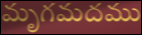
మృగమదము